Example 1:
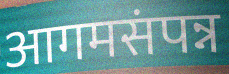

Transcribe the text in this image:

आगमसंपन्न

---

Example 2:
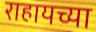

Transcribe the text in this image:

राहायच्या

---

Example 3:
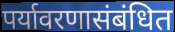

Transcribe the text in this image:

पर्यावरणासंबंधित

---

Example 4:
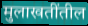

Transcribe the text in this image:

मुलाखतींतील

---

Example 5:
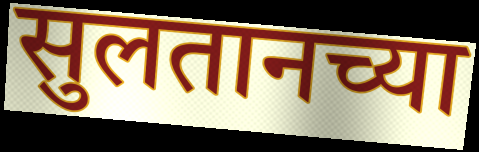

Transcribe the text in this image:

सुलतानच्या